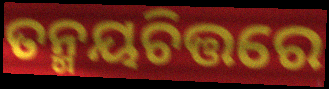
ତନ୍ମୟଚିତ୍ତରେ